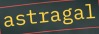
astragal